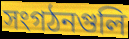
সংগঠনগুলি